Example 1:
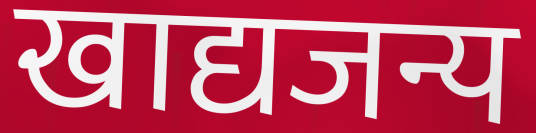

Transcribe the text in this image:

खाद्यजन्य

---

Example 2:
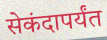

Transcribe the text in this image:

सेकंदापर्यंत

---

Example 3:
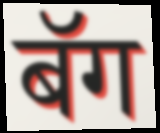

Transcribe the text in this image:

बॅग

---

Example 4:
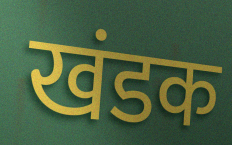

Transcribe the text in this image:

खंडक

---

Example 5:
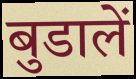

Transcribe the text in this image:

बुडालें